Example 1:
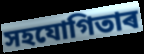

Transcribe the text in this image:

সহযোগিতাৰ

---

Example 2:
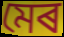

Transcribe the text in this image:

মেৰ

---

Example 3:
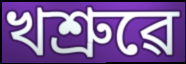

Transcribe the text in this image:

খশ্ৰুৱে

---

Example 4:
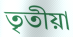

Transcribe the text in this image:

তৃতীয়া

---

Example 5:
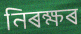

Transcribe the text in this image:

নিৰক্ষৰ